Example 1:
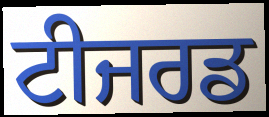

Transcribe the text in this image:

ਟੀਜਰਡ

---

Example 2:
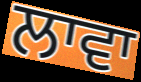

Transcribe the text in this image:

ਲਾਵਾ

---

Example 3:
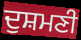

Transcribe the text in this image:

ਦੁਸ਼ਮਣੀ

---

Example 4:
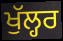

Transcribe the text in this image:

ਖੁੱਲ੍ਹਰ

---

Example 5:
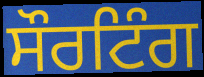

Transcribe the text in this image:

ਸੌਰਟਿੰਗ